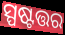
ସ୍ପଷ୍ଟତ୍ତର